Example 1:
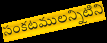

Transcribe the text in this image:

సంకటములన్నిటిని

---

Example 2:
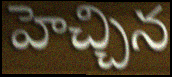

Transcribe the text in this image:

హెచ్చిన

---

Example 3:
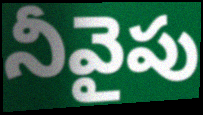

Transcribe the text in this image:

నీవైపు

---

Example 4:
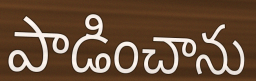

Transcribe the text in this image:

పాడించాను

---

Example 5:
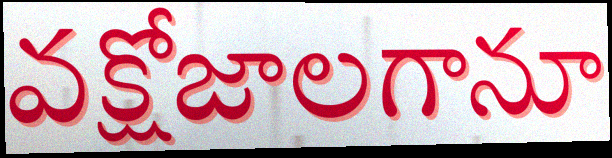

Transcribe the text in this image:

వక్షోజాలగానూ